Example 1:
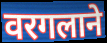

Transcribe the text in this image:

वरगलाने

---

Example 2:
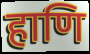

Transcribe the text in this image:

हाणि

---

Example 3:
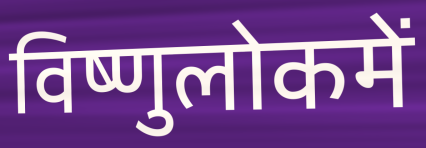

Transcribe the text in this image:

विष्णुलोकमें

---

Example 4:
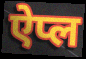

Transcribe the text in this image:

ऐप्ल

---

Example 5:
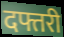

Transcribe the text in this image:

दफ्तरी